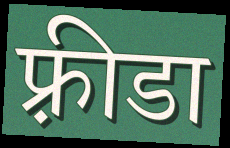
फ़्रीडा